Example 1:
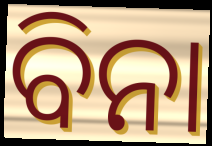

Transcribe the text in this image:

ବିନା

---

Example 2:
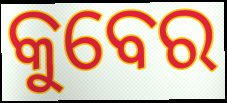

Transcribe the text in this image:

କୁବେର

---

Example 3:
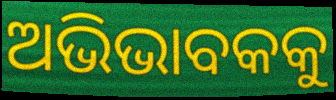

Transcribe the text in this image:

ଅଭିଭାବକକୁ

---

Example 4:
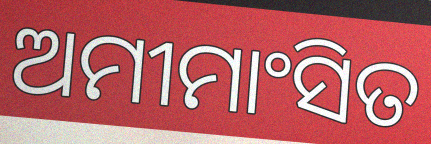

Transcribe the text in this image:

ଅମୀମାଂସିତ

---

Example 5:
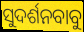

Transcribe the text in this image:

ସୁଦର୍ଶନବାବୁ